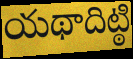
యథాదిట్ఠి